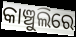
କାଞ୍ଚୁଲିରେ